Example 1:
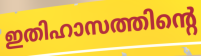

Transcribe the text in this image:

ഇതിഹാസത്തിന്റെ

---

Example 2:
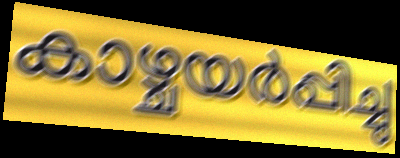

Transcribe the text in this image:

കാഴ്ചയർപ്പിച്ചു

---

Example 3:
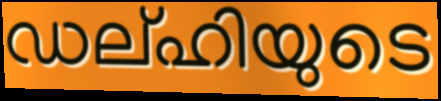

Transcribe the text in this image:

ഡല്ഹിയുടെ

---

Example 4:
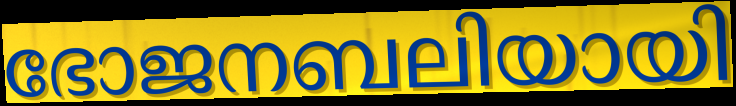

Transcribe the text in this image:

ഭോജനബലിയായി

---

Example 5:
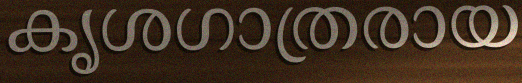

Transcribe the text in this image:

കൃശഗാത്രരായ